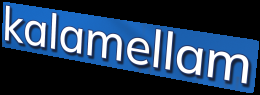
kalamellam